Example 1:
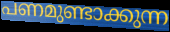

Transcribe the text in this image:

പണമുണ്ടാക്കുന്ന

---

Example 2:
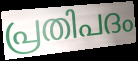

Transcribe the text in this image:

പ്രതിപദം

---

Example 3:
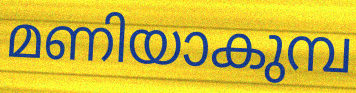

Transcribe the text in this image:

മണിയാകുമ്പ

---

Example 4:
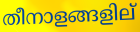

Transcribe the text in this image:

തീനാളങ്ങളില്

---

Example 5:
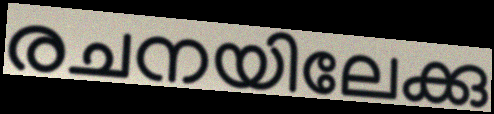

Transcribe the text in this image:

രചനയിലേക്കു